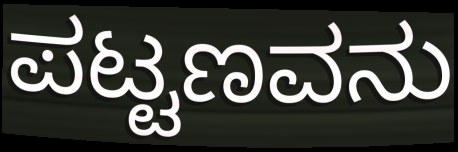
ಪಟ್ಟಣವನು